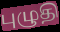
புழுதி